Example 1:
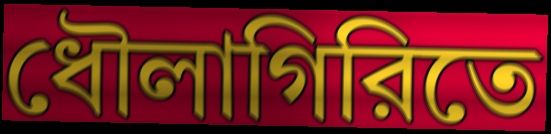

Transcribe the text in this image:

ধৌলাগিরিতে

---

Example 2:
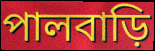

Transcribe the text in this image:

পালবাড়ি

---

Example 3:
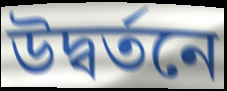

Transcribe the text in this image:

উদ্বর্তনে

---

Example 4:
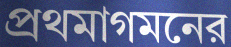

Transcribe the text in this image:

প্রথমাগমনের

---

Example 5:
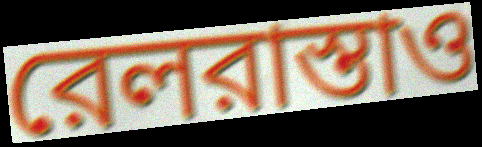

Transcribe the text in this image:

রেলরাস্তাও